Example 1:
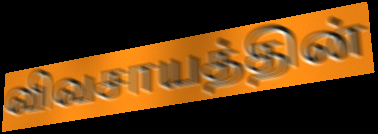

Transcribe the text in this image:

விவசாயத்தின்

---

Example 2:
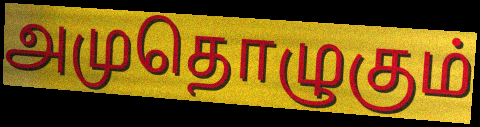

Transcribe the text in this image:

அமுதொழுகும்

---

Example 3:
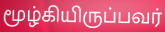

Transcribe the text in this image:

மூழ்கியிருப்பவர்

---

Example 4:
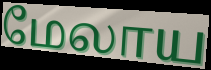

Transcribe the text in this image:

மேலாய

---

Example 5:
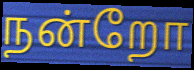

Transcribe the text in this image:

நன்றோ